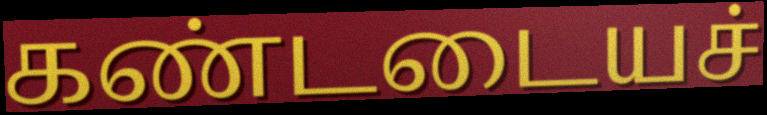
கண்டடையச்